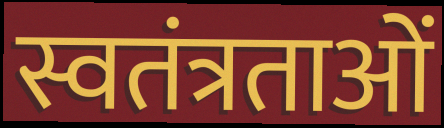
स्वतंत्रताओं